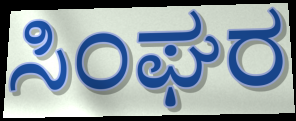
ಸಿಂಘರ